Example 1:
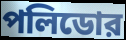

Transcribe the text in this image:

পলিডোর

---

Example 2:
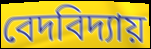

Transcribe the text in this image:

বেদবিদ্যায়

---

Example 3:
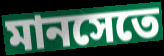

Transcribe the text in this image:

মানসেতে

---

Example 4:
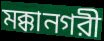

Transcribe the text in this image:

মক্কানগরী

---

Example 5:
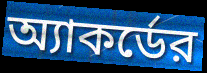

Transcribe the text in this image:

অ্যাকর্ডের